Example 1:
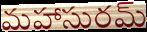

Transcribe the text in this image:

మహాసురమ్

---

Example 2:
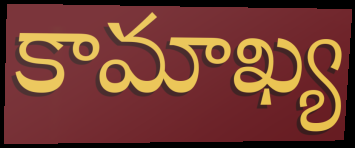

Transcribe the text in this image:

కామాఖ్య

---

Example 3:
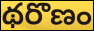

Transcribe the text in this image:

థరొణం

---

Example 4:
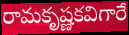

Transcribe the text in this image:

రామకృష్ణకవిగారే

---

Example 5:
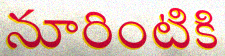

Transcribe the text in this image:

నూరింటికి